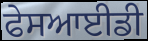
ਫੇਸਆਈਡੀ